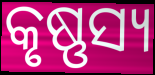
କୃଷ୍ଣସ୍ୟ